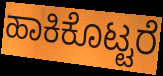
ಹಾಕಿಕೊಟ್ಟರೆ